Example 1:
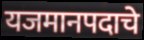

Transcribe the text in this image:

यजमानपदाचे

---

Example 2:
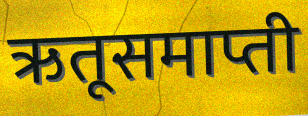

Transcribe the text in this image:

ऋतूसमाप्ती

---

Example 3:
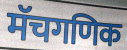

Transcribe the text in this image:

मॅचगणिक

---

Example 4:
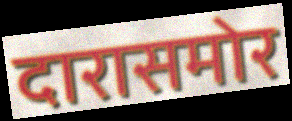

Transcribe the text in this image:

दारासमोर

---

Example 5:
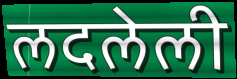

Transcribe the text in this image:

लदलेली